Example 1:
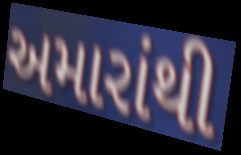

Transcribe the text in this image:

અમારાંથી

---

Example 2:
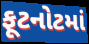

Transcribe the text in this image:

ફૂટનોટમાં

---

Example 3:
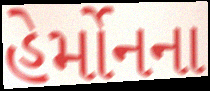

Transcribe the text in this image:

હેર્મોનના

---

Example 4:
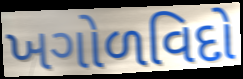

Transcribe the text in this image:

ખગોળવિદો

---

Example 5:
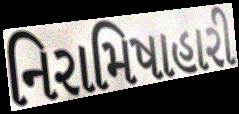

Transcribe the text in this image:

નિરામિષાહારી